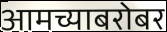
आमच्याबरोबर